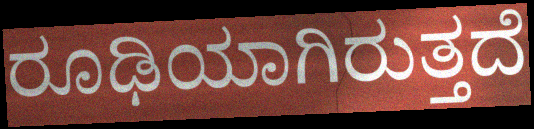
ರೂಢಿಯಾಗಿರುತ್ತದೆ